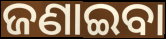
ଜଣାଇବା